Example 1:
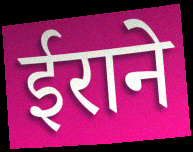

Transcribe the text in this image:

ईराने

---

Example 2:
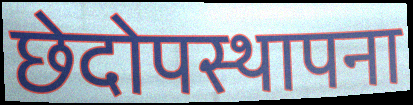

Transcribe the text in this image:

छेदोपस्थापना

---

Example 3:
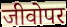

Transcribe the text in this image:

जीवोपर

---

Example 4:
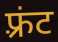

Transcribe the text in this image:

फ़्रंट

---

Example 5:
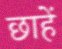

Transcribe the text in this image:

छाहें